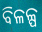
ବିଳଳ୍ପ